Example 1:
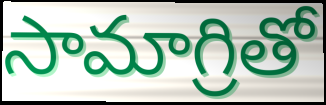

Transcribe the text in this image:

సామాగ్రితో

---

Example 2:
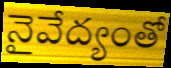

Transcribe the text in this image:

నైవేద్యంతో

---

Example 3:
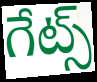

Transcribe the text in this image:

గేట్స్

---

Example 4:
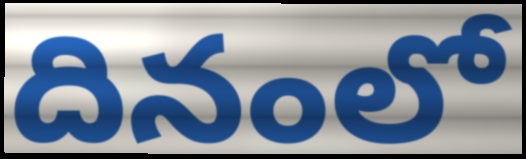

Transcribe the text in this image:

దినంలో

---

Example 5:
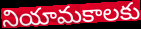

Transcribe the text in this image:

నియామకాలకు